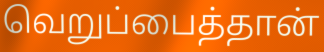
வெறுப்பைத்தான்